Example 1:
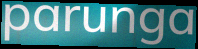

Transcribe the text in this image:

parunga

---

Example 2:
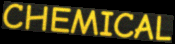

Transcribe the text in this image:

CHEMICAL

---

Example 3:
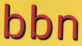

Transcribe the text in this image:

bbn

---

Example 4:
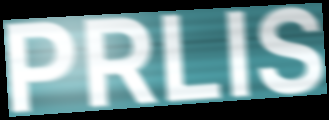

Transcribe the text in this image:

PRLIS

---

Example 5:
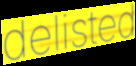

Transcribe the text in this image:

delisted